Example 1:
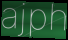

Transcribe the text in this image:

ajph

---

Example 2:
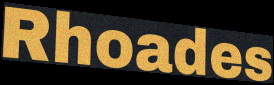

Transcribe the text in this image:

Rhoades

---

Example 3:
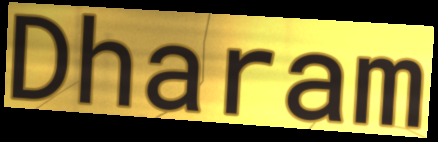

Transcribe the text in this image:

Dharam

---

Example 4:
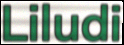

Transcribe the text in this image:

Liludi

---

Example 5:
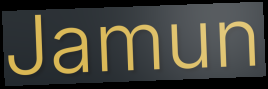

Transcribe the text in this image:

Jamun